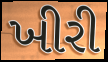
ખીરી